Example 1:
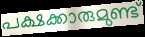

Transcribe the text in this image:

പക്ഷക്കാരുമുണ്ട്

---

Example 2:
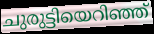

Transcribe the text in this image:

ചുരുട്ടിയെറിഞ്ഞ്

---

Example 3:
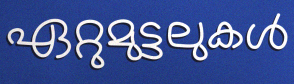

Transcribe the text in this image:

ഏറ്റുമുട്ടലുകൾ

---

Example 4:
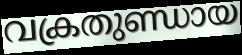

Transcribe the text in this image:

വക്രതുണ്ഡായ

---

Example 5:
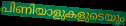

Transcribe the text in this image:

പിണിയാളുകളുടെയും